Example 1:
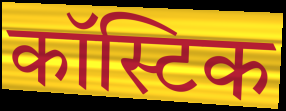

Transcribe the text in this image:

कॉस्टिक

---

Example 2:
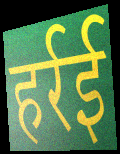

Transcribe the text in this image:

हर्रई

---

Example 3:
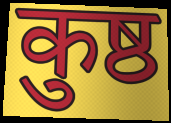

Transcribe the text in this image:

कुष्ठ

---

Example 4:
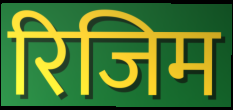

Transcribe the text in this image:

रिजिम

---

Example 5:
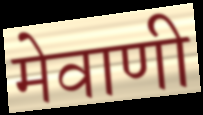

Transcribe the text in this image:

मेवाणी